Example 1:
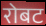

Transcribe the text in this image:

रोबट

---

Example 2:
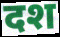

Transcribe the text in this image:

दश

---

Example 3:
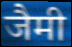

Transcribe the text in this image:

जैमी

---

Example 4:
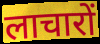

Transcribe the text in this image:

लाचारों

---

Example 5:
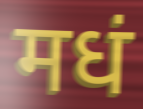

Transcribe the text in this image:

मधं